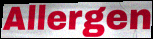
Allergen